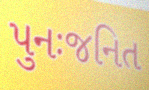
પુનઃજનિત